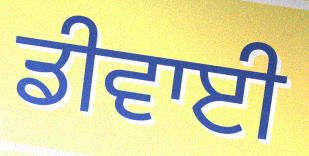
ਡੀਵਾਈ